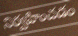
నిర్వహించడం